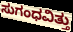
ಸುಗಂಧವಿತ್ತು